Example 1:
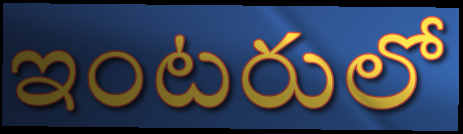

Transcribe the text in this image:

ఇంటరులో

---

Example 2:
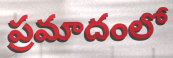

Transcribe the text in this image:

ప్రమాదంలో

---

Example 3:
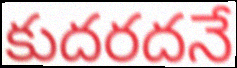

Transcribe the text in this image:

కుదరదనే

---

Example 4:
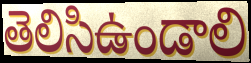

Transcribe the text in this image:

తెలిసిఉండాలి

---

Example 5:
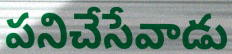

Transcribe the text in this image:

పనిచేసేవాడు